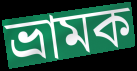
ভ্রামক